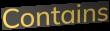
Contains